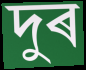
দুৰ